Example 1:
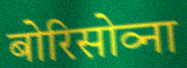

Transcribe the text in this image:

बोरिसोव्ना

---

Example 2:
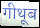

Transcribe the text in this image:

गीथूब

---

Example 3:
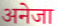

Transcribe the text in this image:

अनेजा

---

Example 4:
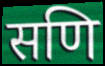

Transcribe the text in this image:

सणि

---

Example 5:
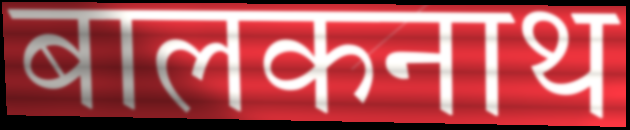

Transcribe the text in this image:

बालकनाथ